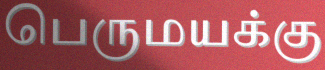
பெருமயக்கு